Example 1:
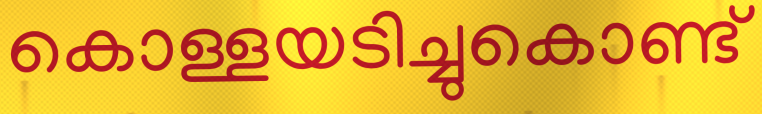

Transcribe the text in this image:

കൊള്ളയടിച്ചുകൊണ്ട്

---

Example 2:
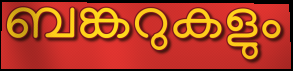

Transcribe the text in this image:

ബങ്കറുകളും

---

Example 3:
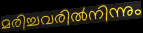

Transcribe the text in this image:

മരിച്ചവരിൽനിന്നും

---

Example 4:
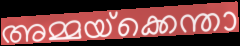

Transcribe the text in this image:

അമ്മയ്‌ക്കെന്താ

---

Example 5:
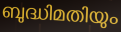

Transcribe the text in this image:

ബുദ്ധിമതിയും